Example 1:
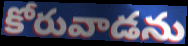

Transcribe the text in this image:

కోరువాడను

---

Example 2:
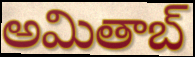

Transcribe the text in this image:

అమితాబ్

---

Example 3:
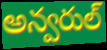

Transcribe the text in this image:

అన్వరుల్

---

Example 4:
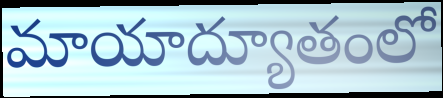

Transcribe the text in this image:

మాయాద్యూతంలో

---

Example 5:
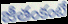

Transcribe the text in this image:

జీతంకంటే